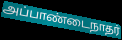
அப்பாண்டைநாதர்